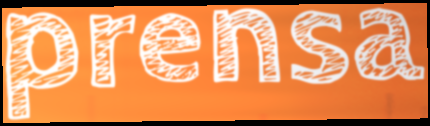
prensa